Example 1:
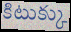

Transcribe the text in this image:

కిటుక్కు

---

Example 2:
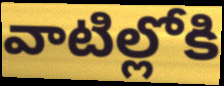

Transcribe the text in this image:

వాటిల్లోకి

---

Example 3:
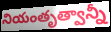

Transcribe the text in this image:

నియంతృత్వాన్నీ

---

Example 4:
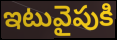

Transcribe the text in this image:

ఇటువైపుకి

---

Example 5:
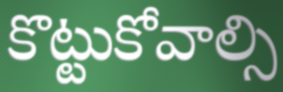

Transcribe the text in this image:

కొట్టుకోవాల్సి